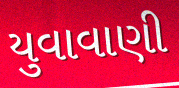
યુવાવાણી